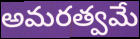
అమరత్వమే